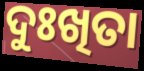
ଦୁଃଖିତା